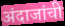
अंदाजांची